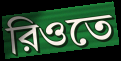
রিওতে